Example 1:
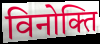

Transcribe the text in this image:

विनोक्ति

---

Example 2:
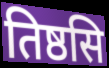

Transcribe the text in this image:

तिष्ठसि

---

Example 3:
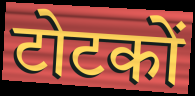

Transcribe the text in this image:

टोटकों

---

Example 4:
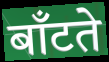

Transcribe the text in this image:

बाँटते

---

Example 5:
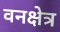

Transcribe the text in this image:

वनक्षेत्र